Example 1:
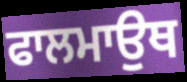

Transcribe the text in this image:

ਫਾਲਮਾਉਥ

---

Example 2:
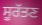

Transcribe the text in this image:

ਸੂਰੱਤਣ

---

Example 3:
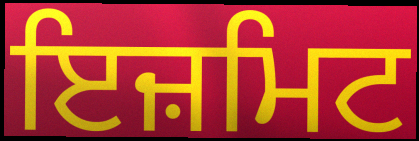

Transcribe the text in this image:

ਇਜ਼ਮਿਟ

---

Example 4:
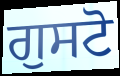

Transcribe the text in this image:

ਗੁਸਟੋ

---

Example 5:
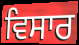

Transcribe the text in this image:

ਵਿਸਾਰ